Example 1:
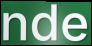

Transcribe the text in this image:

nde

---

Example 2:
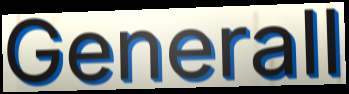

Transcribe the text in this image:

Generall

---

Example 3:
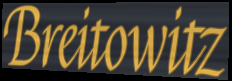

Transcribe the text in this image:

Breitowitz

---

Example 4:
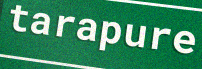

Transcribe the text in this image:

tarapure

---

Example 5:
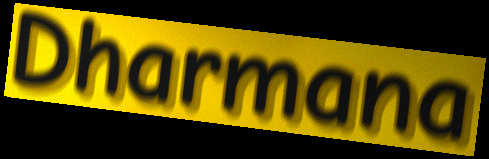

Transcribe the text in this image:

Dharmana